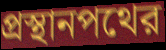
প্রস্থানপথের